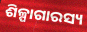
ଶିଳ୍ପାଗାରସ୍ୟ